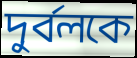
দুর্বলকে